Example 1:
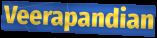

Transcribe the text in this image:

Veerapandian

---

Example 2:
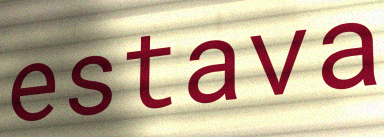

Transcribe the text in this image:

estava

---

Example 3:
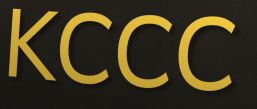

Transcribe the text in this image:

KCCC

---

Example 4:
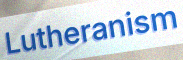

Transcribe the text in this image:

Lutheranism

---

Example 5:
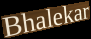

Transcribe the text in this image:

Bhalekar